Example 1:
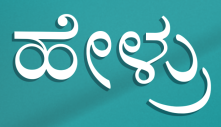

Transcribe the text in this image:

ಹೇಳ್ರು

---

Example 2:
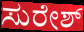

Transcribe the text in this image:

ಸುರೇಶ್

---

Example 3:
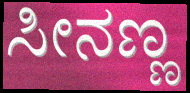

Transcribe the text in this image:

ಸೀನಣ್ಣ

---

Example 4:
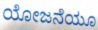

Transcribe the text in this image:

ಯೋಜನೆಯೂ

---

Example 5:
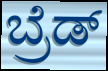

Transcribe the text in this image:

ಬ್ರೆಡ್